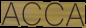
ACCA